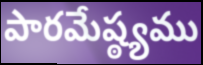
పారమేష్ఠ్యము